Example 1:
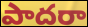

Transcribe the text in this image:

పాదరా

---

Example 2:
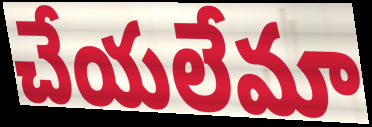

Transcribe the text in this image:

చేయలేమా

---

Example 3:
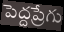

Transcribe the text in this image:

పెద్దప్రేగు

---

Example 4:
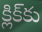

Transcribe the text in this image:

క్లిక్‌కు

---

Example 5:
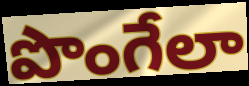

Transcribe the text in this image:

పొంగేలా